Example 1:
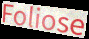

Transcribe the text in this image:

Foliose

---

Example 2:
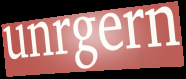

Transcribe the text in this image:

unrgern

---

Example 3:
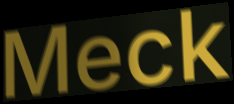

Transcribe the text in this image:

Meck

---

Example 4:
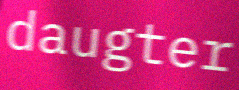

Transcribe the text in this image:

daugter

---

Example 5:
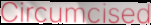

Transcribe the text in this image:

Circumcised